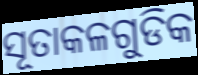
ସୂତାକଳଗୁଡିକ